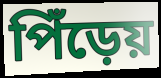
পিঁড়েয়